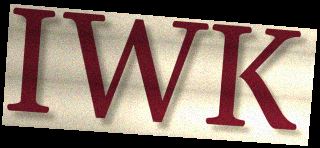
IWK